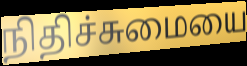
நிதிச்சுமையை